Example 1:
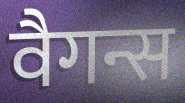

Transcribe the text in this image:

वैगन्स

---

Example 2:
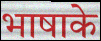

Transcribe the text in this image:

भाषाके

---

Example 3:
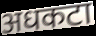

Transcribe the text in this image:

अधकटा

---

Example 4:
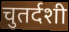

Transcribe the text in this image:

चुतर्दशी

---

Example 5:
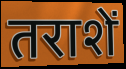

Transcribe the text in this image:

तराशें